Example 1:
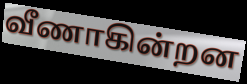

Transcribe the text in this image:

வீணாகின்றன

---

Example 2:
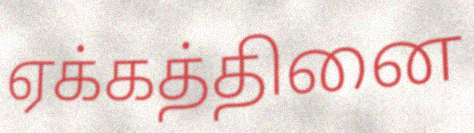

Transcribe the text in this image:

ஏக்கத்தினை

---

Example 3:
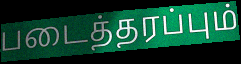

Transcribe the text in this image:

படைத்தரப்பும்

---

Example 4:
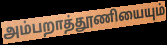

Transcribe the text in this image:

அம்பறாத்தூணியையும்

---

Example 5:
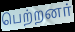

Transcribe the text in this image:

பெற்றனர்